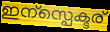
ഇന്സ്പെക്ടര്